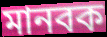
মানবক